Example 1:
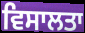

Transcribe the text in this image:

ਵਿਸਾਲਤਾ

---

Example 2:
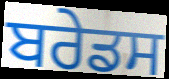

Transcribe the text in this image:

ਬਰੇਡਸ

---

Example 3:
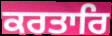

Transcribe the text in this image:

ਕਰਤਾਰਿ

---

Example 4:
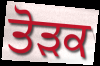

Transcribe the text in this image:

ਤੋੜਕ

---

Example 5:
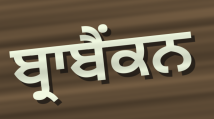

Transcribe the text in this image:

ਬ੍ਰਾਬੈਂਕਨ